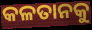
କଳତାନକୁ